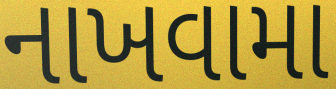
નાખવામા